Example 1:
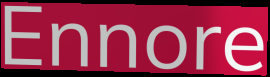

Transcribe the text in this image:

Ennore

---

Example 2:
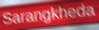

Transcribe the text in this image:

Sarangkheda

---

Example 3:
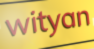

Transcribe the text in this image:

wityan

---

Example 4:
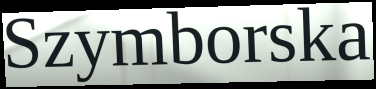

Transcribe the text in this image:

Szymborska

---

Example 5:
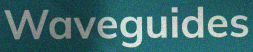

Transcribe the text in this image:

Waveguides